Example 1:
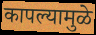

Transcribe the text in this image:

कापल्यामुळे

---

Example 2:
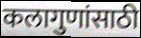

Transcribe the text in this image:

कलागुणांसाठी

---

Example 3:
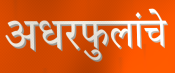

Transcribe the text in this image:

अधरफुलांचे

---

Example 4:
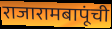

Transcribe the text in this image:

राजारामबापूंची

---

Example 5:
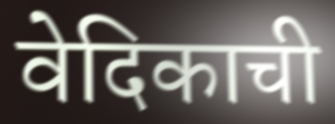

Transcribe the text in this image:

वेदिकाची